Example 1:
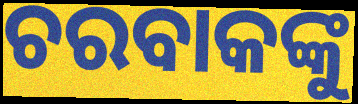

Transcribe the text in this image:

ଚରବାକଙ୍କୁ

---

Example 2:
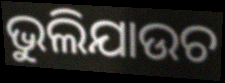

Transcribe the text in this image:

ଭୁଲିଯାଉଚ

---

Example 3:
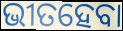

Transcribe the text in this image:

ଭୀତହେବା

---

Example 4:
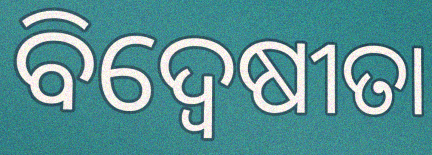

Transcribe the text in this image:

ବିଦ୍ଵେଷୀତା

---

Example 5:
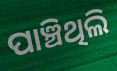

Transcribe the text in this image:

ପାଞ୍ଚିଥିଲି